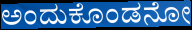
ಅಂದುಕೊಂಡನೋ